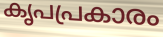
കൃപപ്രകാരം